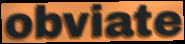
obviate